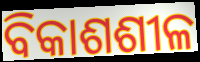
ବିକାଶଶୀଳ